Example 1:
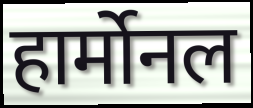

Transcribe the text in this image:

हार्मोनल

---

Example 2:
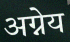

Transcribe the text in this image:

अग्नेय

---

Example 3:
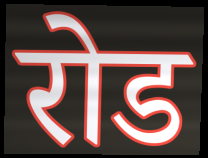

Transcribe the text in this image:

रोड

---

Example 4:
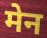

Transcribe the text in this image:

मेन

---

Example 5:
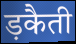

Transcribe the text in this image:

ड़कैती